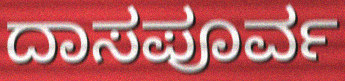
ದಾಸಪೂರ್ವ